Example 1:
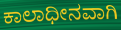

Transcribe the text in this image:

ಕಾಲಾಧೀನವಾಗಿ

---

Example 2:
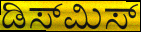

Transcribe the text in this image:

ಡಿಸ್‌ಮಿಸ್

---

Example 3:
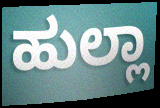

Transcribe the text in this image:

ಹುಲ್ಲಾ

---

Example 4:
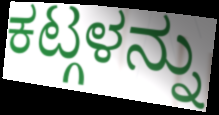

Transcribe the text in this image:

ಕಟ್ಗಳನ್ನು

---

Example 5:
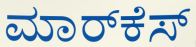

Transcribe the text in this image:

ಮಾರ್‌ಕೆಸ್